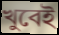
খুবেই